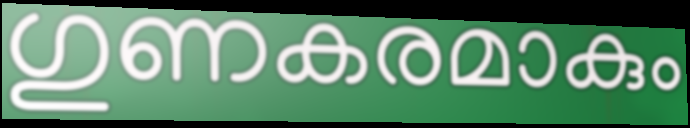
ഗുണകരമാകും